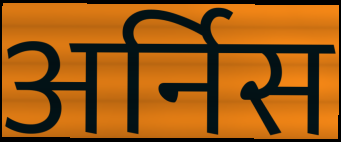
अर्निस